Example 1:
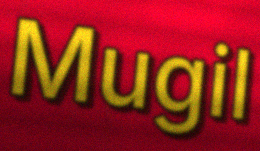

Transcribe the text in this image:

Mugil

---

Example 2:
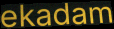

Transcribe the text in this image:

ekadam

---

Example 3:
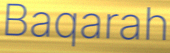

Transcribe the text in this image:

Baqarah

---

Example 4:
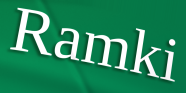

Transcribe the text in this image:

Ramki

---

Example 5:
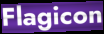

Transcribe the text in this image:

Flagicon